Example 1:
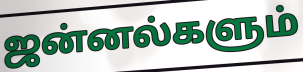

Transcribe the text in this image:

ஜன்னல்களும்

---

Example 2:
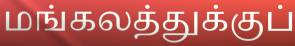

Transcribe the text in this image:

மங்கலத்துக்குப்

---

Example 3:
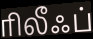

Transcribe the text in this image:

ரிலீஃப்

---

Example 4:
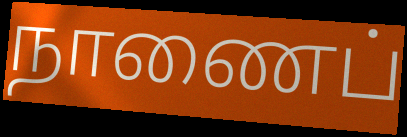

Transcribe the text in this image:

நாணைப்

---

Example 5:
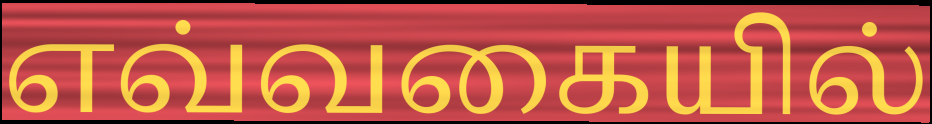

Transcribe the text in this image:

எவ்வகையில்